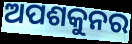
ଅପଶକୁନର